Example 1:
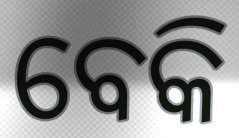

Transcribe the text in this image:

ବେକି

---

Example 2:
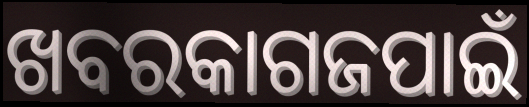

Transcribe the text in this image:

ଖବରକାଗଜପାଇଁ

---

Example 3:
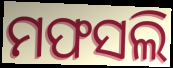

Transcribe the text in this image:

ମଫସଲି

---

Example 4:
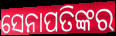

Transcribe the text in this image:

ସେନାପତିଙ୍କର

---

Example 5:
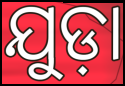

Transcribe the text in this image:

ଯୁଡ଼ା